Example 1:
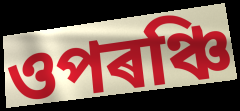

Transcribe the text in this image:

ওপৰঞ্চি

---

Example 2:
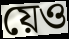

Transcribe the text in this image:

য়েও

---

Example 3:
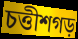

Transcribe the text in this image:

চত্তীশগড়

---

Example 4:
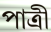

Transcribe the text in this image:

পাত্ৰী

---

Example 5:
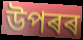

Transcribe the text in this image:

উপৰৰ